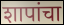
शापांचा